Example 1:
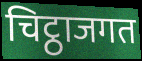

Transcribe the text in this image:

चिट्ठाजगत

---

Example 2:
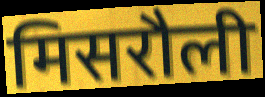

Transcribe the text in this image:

मिसरौली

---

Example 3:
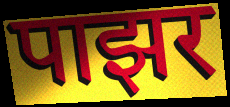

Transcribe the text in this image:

पाझर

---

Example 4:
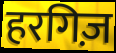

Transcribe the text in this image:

हरगिज़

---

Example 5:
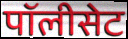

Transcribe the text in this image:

पॉलीसेट